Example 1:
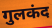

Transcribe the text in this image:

गुलकंद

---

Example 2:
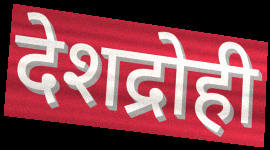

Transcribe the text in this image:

देशद्रोही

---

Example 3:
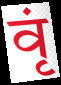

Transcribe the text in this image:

वृं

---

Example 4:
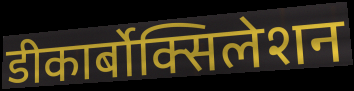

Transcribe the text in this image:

डीकार्बोक्सिलेशन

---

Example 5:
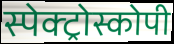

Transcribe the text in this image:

स्पेक्ट्रोस्कोपी